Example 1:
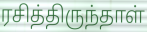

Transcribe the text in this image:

ரசித்திருந்தாள்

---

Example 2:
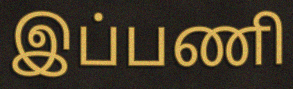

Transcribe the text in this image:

இப்பணி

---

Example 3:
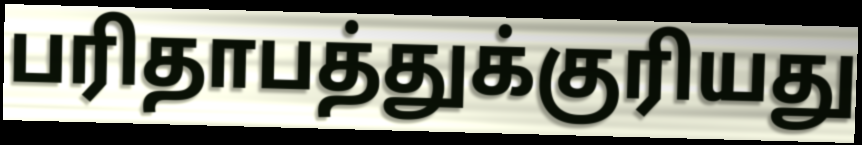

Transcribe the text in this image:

பரிதாபத்துக்குரியது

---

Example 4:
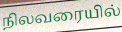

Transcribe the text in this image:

நிலவரையில்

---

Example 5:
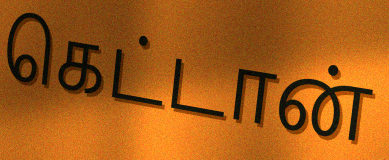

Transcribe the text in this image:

கெட்டான்